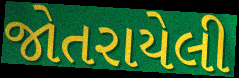
જોતરાયેલી